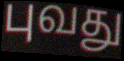
புவது